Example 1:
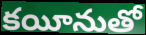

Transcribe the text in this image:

కయీనుతో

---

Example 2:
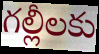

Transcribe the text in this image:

గల్లీలకు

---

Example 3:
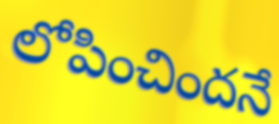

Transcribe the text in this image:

లోపించిందనే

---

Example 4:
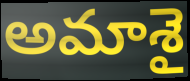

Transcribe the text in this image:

అమాశై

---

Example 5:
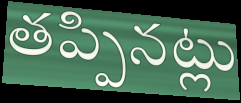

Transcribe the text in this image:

తప్పినట్లు